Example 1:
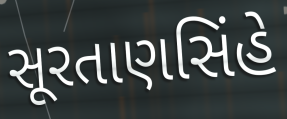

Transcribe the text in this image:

સૂરતાણસિંહે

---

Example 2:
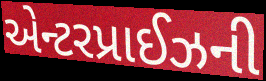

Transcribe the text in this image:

એન્ટરપ્રાઈઝની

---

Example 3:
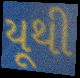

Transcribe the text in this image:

યૂથી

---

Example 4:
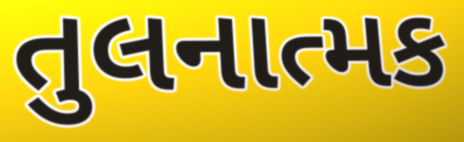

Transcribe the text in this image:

તુલનાત્મક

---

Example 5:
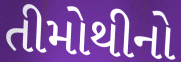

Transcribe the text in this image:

તીમોથીનો